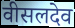
वीसलदेव